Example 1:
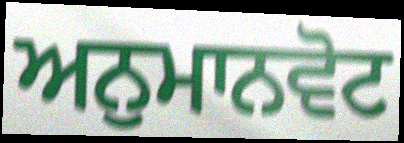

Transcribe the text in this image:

ਅਨੁਮਾਨਵੋਟ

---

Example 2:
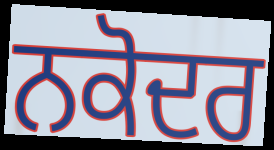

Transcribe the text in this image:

ਨਕੋਦਰ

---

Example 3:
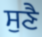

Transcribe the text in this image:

ਸੁਣੈ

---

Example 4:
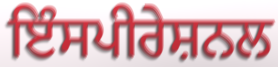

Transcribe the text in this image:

ਇੰਸਪੀਰੇਸ਼ਨਲ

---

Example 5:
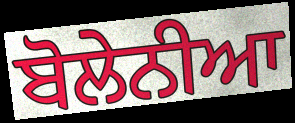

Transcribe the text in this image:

ਬੋਲੇਨੀਆ